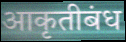
आकृतीबंध